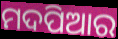
ମଦପିଆର